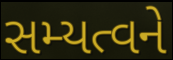
સમ્યત્વને